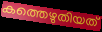
കത്തെഴുതിയത്